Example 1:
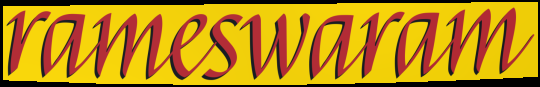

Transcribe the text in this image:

rameswaram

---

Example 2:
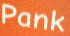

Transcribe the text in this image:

Pank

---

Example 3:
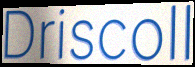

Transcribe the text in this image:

Driscoll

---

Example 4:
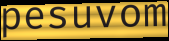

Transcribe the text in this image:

pesuvom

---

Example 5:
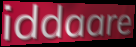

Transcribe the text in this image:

iddaare